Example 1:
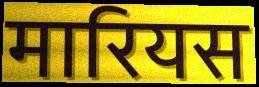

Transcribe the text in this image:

मारियस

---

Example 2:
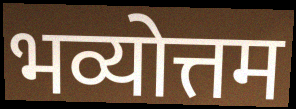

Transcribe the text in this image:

भव्योत्तम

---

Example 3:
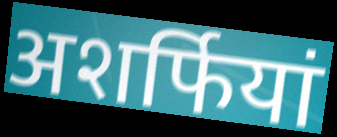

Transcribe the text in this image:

अशर्फियां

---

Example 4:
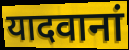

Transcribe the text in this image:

यादवानां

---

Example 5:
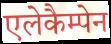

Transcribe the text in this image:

एलेकैम्पेन